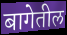
बागेतील